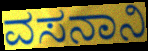
ವಸನಾನಿ